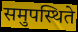
समुपस्थिते